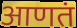
आणतं